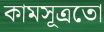
কামসূত্ৰতো